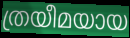
ത്രയീമയായ